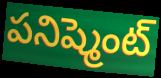
పనిష్మెంట్